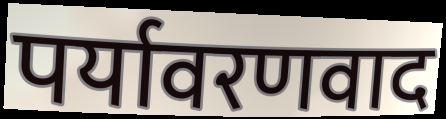
पर्यावरणवाद